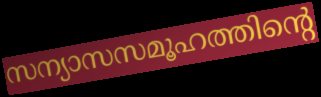
സന്യാസസമൂഹത്തിന്റെ